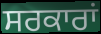
ਸਰਕਾਰਾਂ